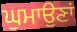
ਘੁਮਾਉਣਾਂ